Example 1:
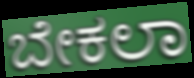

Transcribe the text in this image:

ಬೇಕಲಾ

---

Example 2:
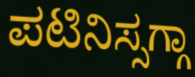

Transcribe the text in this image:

ಪಟಿನಿಸ್ಸಗ್ಗಾ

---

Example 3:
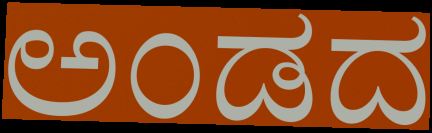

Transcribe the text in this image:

ಅಂಡದ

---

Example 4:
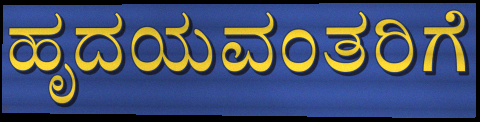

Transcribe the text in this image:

ಹೃದಯವಂತರಿಗೆ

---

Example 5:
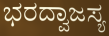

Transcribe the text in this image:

ಭರದ್ವಾಜಸ್ಯ